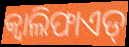
କ୍ୱାଲିଫାଏଡ୍